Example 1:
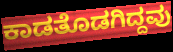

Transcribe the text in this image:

ಕಾಡತೊಡಗಿದ್ದವು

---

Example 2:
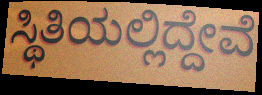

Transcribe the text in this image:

ಸ್ಥಿತಿಯಲ್ಲಿದ್ದೇವೆ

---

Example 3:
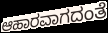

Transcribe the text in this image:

ಆಹಾರವಾಗದಂತೆ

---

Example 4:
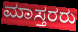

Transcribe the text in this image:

ಮಾಸ್ತರರು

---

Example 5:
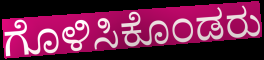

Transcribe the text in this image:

ಗೊಳಿಸಿಕೊಂಡರು